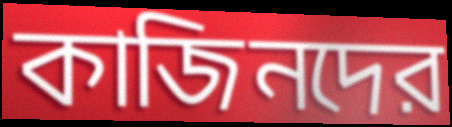
কাজিনদের